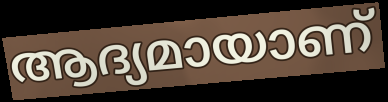
ആദ്യമായാണ്